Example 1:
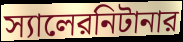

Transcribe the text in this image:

স্যালেরনিটানার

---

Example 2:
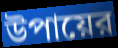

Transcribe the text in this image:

উপায়ের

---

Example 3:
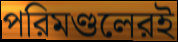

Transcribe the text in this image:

পরিমণ্ডলেরই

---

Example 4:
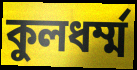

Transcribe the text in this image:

কুলধর্ম্ম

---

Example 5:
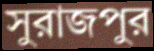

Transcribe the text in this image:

সুরাজপুর